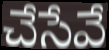
చేసేవే